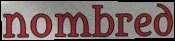
nombred